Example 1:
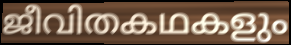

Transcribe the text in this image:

ജീവിതകഥകളും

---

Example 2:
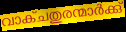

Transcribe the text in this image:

വാക്ചതുരന്മാർക്കു്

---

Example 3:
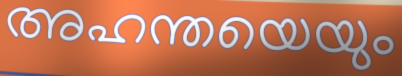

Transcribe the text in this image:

അഹന്തയെയും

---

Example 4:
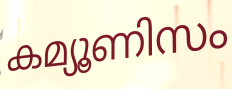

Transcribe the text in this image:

കമ്യൂണിസം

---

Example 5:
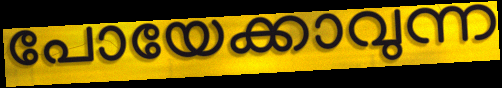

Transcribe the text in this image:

പോയേക്കാവുന്ന